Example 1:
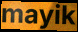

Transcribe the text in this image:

mayik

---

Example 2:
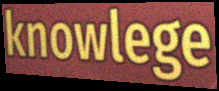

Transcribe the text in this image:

knowlege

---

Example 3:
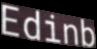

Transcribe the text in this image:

Edinb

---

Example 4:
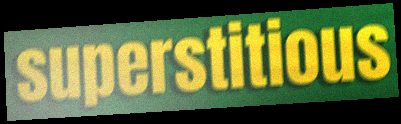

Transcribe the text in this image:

superstitious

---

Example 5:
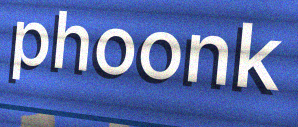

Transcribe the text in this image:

phoonk